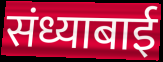
संध्याबाई